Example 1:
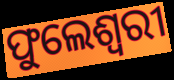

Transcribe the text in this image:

ଫୁଲେଶ୍ବରୀ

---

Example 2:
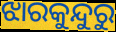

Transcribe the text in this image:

ଝାରକୁନ୍ଦୁରୁ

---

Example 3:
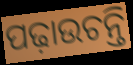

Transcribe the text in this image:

ପଢ଼ାଉଚନ୍ତି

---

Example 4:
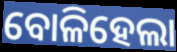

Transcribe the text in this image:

ବୋଳିହେଲା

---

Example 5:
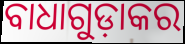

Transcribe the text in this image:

ବାଧାଗୁଡ଼ାକର